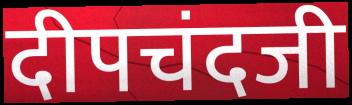
दीपचंदजी